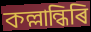
কল্লান্ধিৰি